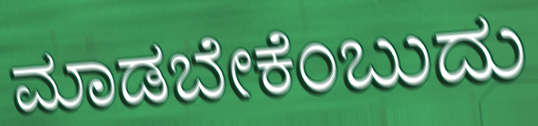
ಮಾಡಬೇಕೆಂಬುದು